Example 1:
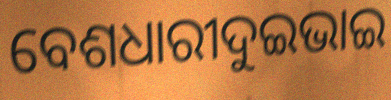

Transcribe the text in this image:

ବେଶଧାରୀଦୁଇଭାଇ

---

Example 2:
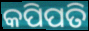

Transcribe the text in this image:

କପିପତି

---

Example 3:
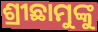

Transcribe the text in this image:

ଶ୍ରୀଛାମୁଙ୍କୁ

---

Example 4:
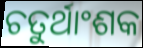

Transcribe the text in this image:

ଚତୁର୍ଥାଂଶକ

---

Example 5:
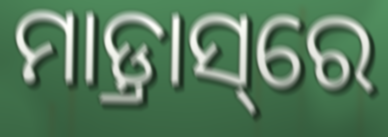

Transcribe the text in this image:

ମାଡ଼୍ରାସ୍‌ରେ